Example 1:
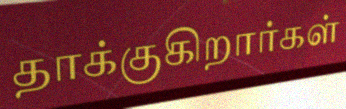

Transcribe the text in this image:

தாக்குகிறார்கள்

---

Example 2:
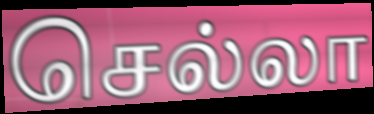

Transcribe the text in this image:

செல்லா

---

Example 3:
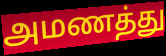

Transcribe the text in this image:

அமணத்து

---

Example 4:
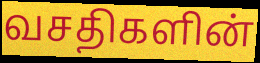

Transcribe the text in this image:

வசதிகளின்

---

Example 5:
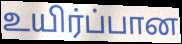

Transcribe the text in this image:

உயிர்ப்பான